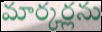
మార్కర్లను